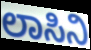
ಲಾಸಿನಿ